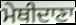
ਮੇਥੀਦਾਣਾ